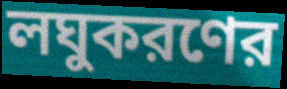
লঘুকরণের